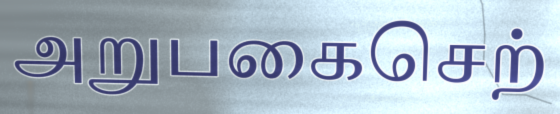
அறுபகைசெற்